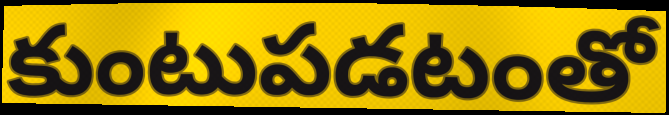
కుంటుపడటంతో